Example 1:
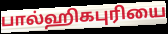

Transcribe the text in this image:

பால்ஹிகபுரியை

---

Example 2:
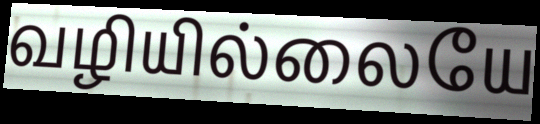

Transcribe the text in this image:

வழியில்லையே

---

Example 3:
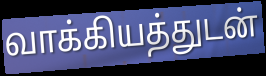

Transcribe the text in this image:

வாக்கியத்துடன்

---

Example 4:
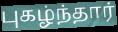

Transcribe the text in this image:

புகழ்ந்தார்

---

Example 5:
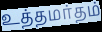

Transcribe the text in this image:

உத்தமர்தம்